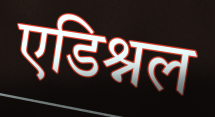
एडिश्नल